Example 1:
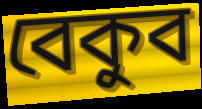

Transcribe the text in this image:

বেকুব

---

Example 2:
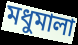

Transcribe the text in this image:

মধুমালা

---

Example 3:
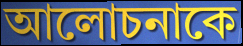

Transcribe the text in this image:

আলোচনাকে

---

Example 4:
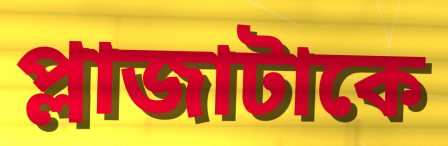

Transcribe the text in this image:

প্লাজাটাকে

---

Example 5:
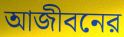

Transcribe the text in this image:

আজীবনের